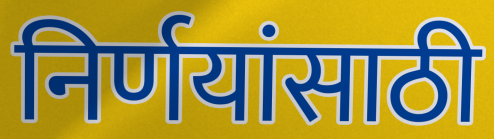
निर्णयांसाठी